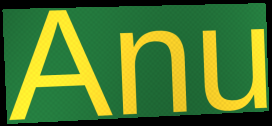
Anu